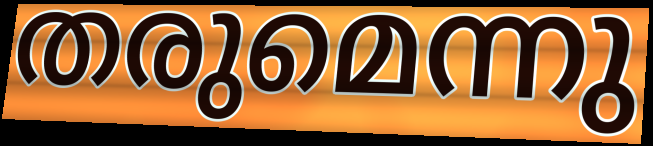
തരുമെന്നു